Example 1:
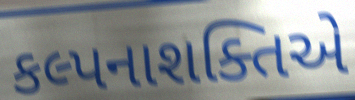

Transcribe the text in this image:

કલ્પનાશક્તિએ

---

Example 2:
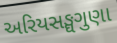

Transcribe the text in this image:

અરિયસઙ્ઘગુણા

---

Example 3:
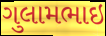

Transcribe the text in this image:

ગુલામભાઇ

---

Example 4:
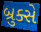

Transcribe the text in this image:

બ્રુક્સે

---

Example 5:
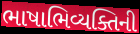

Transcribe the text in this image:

ભાષાભિવ્યક્તિની